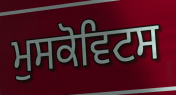
ਮੁਸਕੋਵਿਟਸ